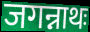
जगन्नाथः